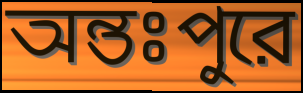
অন্তঃপুরে